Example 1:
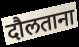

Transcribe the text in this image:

दौलताना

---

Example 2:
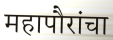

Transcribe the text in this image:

महापौरांचा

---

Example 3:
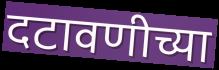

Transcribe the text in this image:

दटावणीच्या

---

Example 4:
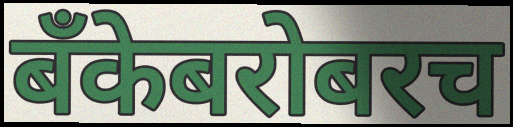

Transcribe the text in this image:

बँकेबरोबरच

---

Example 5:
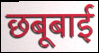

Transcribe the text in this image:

छबूबाई